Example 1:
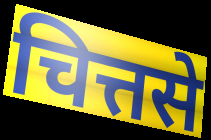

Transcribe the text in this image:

चित्तसे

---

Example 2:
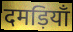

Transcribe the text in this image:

दमड़ियाँ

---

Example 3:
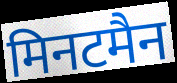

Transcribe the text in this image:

मिनटमैन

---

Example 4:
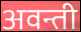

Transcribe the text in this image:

अवन्ती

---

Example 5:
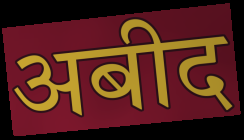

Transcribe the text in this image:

अबीद